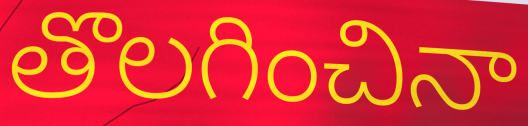
తొలగించినా